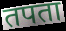
तपता